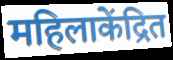
महिलाकेंद्रित